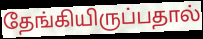
தேங்கியிருப்பதால்